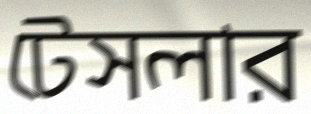
টেসলার